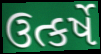
ઉત્કર્ષે